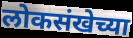
लोकसंखेच्या